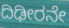
ದಿಢೀರನೇ